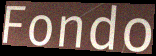
Fondo